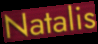
Natalis